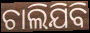
ଚାଲିଯିବି